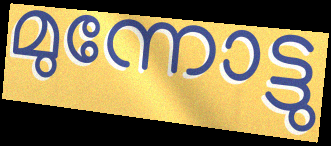
മുന്നോട്ടു